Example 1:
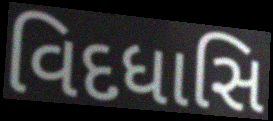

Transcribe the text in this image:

વિદધાસિ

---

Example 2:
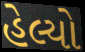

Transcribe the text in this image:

હેલ્યો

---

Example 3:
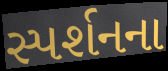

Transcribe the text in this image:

સ્પર્શનના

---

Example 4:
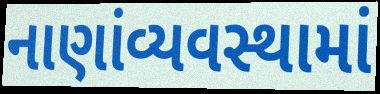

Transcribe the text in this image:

નાણાંવ્યવસ્થામાં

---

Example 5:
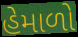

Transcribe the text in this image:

હેમાળો